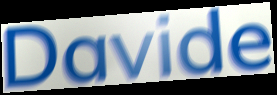
Davide